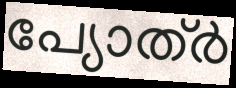
പ്യോത്ർ